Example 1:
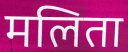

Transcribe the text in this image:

मलिता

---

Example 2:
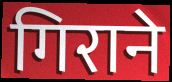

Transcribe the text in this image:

गिराने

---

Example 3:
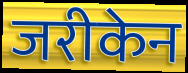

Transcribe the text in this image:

जरीकेन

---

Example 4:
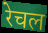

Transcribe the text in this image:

रेचल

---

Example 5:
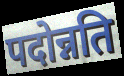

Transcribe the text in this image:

पदोन्नति